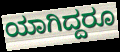
ಯಾಗಿದ್ದರೂ